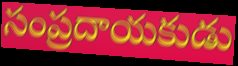
సంప్రదాయకుడు